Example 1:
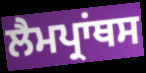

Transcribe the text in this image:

ਲੈਮਪ੍ਰਾਂਥਸ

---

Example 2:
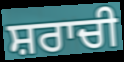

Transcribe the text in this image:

ਸ਼ਰਾਚੀ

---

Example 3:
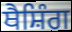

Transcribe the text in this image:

ਥੈਸ਼ਿੰਗ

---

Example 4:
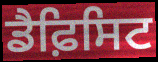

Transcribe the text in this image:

ਡੈਫ਼ਿਸਿਟ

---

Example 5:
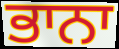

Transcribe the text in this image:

ਭਾਨਾ